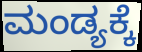
ಮಂಡ್ಯಕ್ಕೆ